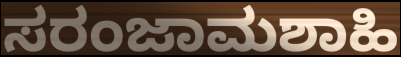
ಸರಂಜಾಮಶಾಹಿ